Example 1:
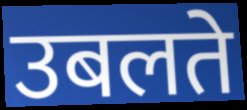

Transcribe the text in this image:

उबलते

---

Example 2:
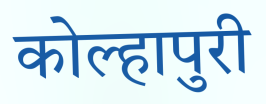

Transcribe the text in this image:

कोल्हापुरी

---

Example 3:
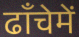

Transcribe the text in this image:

ढाँचेमें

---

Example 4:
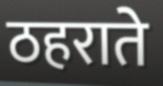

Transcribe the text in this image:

ठहराते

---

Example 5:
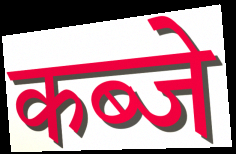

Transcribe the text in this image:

कब्‍जे